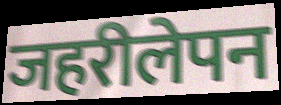
जहरीलेपन